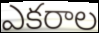
ఎకరాల